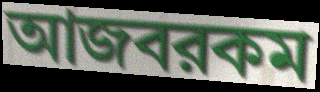
আজবরকম